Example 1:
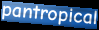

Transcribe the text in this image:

pantropical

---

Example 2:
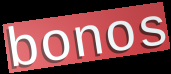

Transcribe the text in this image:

bonos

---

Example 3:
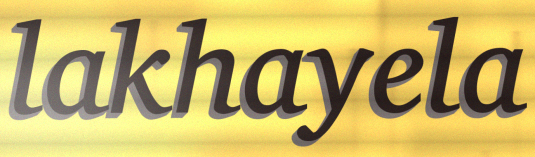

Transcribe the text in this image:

lakhayela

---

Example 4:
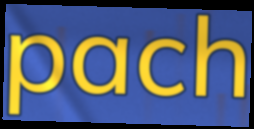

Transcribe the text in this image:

pach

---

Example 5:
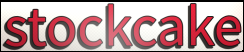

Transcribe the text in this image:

stockcake